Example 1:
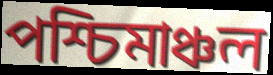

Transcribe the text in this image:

পশ্চিমাঞ্চল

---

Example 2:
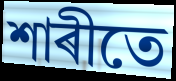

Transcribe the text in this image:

শাৰীতে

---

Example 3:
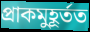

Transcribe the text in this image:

প্ৰাকমুহূৰ্তত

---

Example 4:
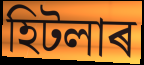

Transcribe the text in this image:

হিটলাৰ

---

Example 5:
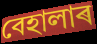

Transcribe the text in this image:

বেহালাৰ